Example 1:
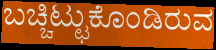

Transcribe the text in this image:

ಬಚ್ಚಿಟ್ಟುಕೊಂಡಿರುವ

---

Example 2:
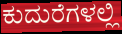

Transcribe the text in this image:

ಕುದುರೆಗಳಲ್ಲಿ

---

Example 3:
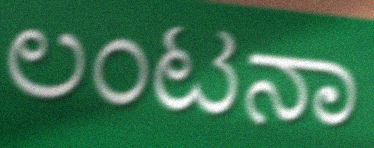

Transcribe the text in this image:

ಲಂಟನಾ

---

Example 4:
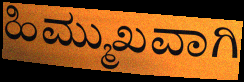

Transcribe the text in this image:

ಹಿಮ್ಮುಖವಾಗಿ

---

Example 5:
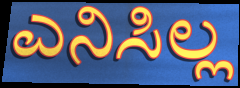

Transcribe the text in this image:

ಎನಿಸಿಲ್ಲ